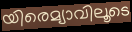
യിരെമ്യാവിലൂടെ